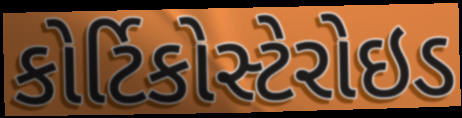
કોર્ટિકોસ્ટેરોઇડ